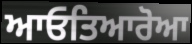
ਆਓਤਿਆਰੋਆ